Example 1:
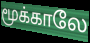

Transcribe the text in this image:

மூக்காலே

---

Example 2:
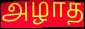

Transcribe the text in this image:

அழாத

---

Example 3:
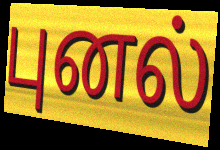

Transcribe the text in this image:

புனல்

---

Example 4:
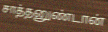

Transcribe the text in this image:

சாத்தனுண்டான்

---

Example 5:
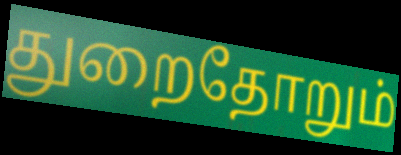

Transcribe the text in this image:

துறைதோறும்